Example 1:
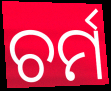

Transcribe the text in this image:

ଚର୍ମ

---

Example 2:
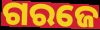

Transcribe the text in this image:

ଗରଜେ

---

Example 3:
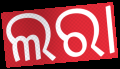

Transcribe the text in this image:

ଲରା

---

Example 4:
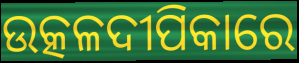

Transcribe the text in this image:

ଉତ୍କଳଦୀପିକାରେ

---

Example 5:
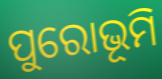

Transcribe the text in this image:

ପୁରୋଭୂମି